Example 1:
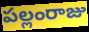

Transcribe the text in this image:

పల్లంరాజు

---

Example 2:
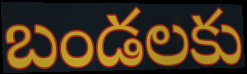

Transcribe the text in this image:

బండలకు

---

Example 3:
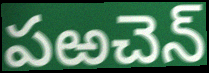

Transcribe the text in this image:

పఱచెన్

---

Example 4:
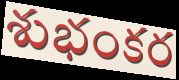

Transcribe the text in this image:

శుభంకర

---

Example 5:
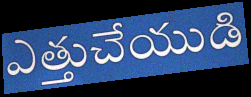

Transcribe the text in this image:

ఎత్తుచేయుడి